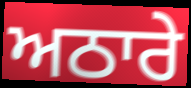
ਅਠਾਰੇ